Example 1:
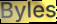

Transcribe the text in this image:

Byles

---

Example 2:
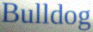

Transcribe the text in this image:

Bulldog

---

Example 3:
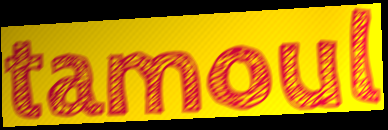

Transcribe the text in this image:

tamoul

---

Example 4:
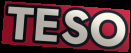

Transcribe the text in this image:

TESO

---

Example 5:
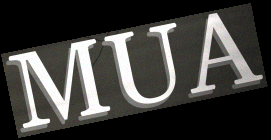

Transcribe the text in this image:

MUA